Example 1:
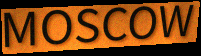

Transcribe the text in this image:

MOSCOW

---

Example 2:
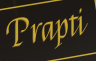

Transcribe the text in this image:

Prapti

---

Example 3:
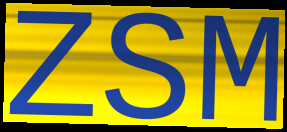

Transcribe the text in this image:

ZSM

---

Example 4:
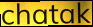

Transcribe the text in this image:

chatak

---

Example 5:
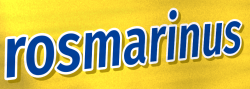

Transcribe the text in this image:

rosmarinus